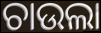
ଚାଉଲା